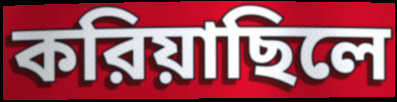
করিয়াছিলে